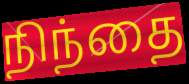
நிந்தை